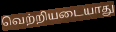
வெற்றியடையாது